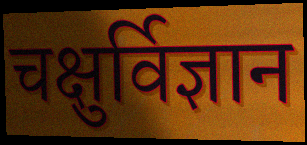
चक्षुर्विज्ञान